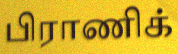
பிராணிக்